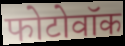
फोटोवॉक